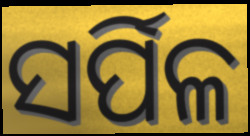
ସର୍ପିଳ